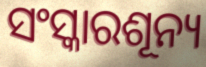
ସଂସ୍କାରଶୂନ୍ୟ